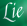
Lie